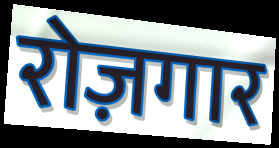
रोज़गार